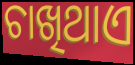
ଚାଖିଥାଏ